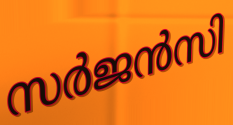
സർജൻസി